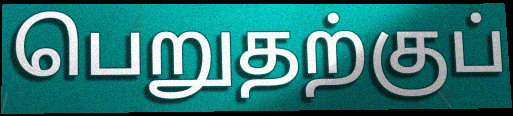
பெறுதற்குப்